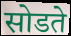
सोडते